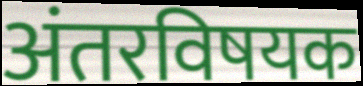
अंतरविषयक